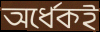
অর্ধেকই